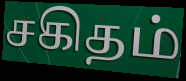
சகிதம்